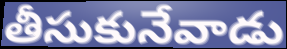
తీసుకునేవాడు